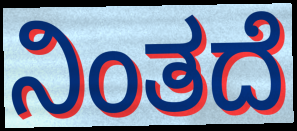
ನಿಂತದೆ